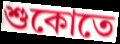
শুকোতে